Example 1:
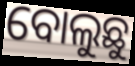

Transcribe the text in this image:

ବୋଲୁଛୁ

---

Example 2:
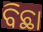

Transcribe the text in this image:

ବିଛା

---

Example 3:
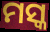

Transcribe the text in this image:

ମସ୍କ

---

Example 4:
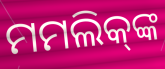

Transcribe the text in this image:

ମମଲିକ୍‌ଙ୍କ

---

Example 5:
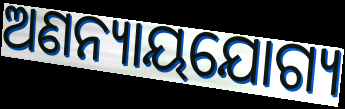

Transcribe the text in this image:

ଅଣନ୍ୟାୟଯୋଗ୍ୟ